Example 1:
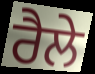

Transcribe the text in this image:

ਰੈਲੇ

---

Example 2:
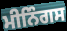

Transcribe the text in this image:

ਮੀਨਿੰਗਸ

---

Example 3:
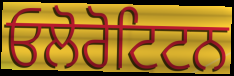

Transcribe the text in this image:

ਓਲੋਰੋਟਿਟਨ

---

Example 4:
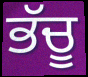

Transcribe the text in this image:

ਭੱਚੂ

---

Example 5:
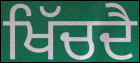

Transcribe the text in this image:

ਖਿੱਚਦੈ